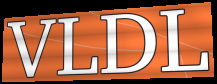
VLDL